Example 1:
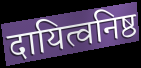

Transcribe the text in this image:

दायित्वनिष्ठ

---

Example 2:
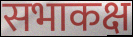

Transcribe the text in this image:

सभाकक्ष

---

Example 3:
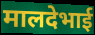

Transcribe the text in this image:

मालदेभाई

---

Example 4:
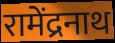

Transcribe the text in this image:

रामेंद्रनाथ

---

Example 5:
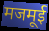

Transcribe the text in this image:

मजमूई